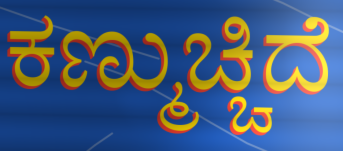
ಕಣ್ಮುಚ್ಚಿದೆ